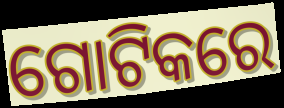
ଗୋଟିକରେ